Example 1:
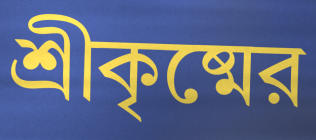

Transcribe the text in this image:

শ্রীকৃষ্মের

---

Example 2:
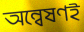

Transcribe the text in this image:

অন্বেষণই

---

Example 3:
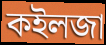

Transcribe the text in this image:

কইলজা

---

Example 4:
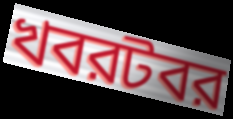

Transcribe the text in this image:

খবরটবর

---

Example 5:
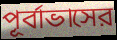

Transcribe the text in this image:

পূর্বাভাসের